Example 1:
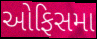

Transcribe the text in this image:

ઓફિસમા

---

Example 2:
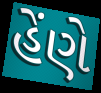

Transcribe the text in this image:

હેંણે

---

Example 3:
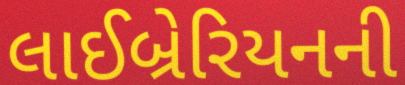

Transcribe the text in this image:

લાઈબ્રેરિયનની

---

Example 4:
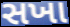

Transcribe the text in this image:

સખા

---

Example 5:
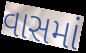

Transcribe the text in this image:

વાસમાં